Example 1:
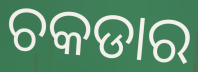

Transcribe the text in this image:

ଚକଡାର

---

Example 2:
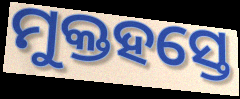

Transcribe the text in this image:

ମୁକ୍ତହସ୍ତେ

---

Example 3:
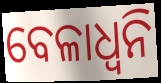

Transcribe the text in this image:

ବେଳାଧ୍ୱନି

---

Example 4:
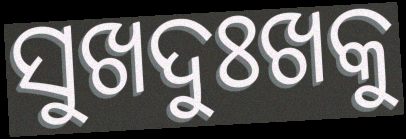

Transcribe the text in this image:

ସୁଖଦୁଃଖକୁ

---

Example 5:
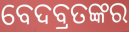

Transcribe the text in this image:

ବେଦବ୍ରତଙ୍କର